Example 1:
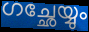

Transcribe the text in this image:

ഗച്ഛേയ്യും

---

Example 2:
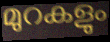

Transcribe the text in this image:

മുറകളും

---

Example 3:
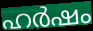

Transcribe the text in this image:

ഹർഷം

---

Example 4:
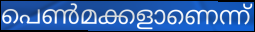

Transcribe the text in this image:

പെൺമക്കളാണെന്ന്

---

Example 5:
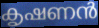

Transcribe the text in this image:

കൃഷണൻ